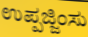
ಉಪ್ಪಜ್ಜಿಂಸು